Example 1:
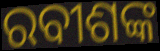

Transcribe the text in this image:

ରବୀଶଙ୍କ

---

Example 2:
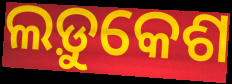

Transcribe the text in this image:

ଲଡ଼ୁକେଶ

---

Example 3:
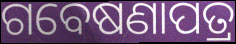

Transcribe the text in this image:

ଗବେଷଣାପତ୍ର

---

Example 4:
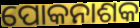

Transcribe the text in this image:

ପୋକନାଶକ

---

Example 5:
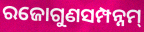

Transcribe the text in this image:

ରଜୋଗୁଣସମ୍ପନ୍ନମ୍